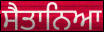
ਸੈਤਾਨਿਆ